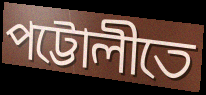
পট্টোলীতে